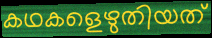
കഥകളെഴുതിയത്